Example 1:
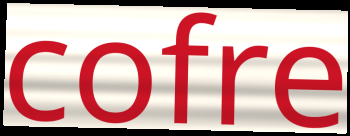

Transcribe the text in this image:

cofre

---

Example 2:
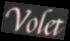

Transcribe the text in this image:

Volet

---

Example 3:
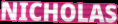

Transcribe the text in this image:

NICHOLAS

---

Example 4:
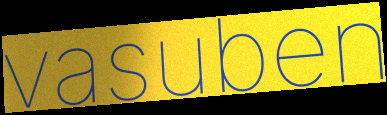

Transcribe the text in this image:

vasuben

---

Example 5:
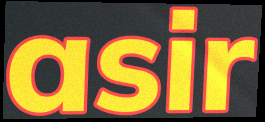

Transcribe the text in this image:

asir